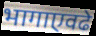
भागाएवढे